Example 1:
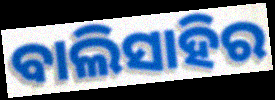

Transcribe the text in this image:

ବାଲିସାହିର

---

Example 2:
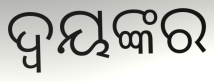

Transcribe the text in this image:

ଦ୍ବୟଙ୍କର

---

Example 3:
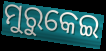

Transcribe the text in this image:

ମୁରୁକେଇ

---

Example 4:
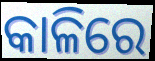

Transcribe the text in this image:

କାଳିରେ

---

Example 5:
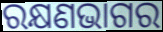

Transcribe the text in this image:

ରକ୍ଷଣଭାଗର